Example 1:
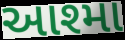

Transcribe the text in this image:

આશ્મા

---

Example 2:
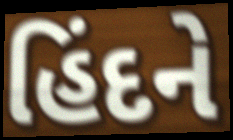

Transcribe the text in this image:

હિંદને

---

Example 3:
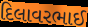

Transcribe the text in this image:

દિલાવરભાઈ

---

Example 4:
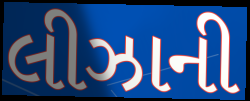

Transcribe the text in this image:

લીઝાની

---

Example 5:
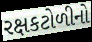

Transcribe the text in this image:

રક્ષકટોળીનો